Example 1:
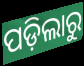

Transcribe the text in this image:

ପଡ଼ିଲାରୁ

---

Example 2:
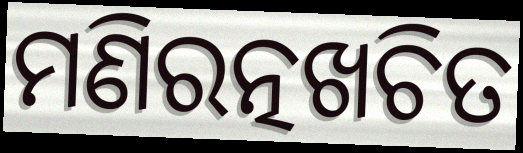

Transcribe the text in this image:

ମଣିରତ୍ନଖଚିତ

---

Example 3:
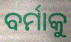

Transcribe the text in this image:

ବର୍ମାକୁ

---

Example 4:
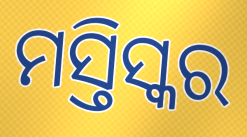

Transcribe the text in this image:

ମସ୍ତିସ୍କର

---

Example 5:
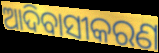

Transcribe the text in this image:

ଆଦିବାସୀକରଣ